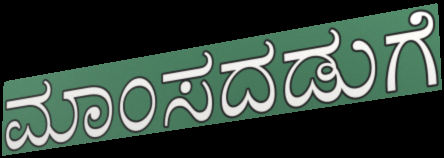
ಮಾಂಸದಡುಗೆ